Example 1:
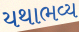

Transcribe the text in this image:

યથાભવ્ય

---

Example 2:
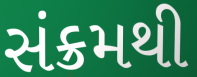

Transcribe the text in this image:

સંક્રમથી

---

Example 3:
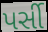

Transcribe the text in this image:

પર્સી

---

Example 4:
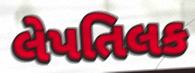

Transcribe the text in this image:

લેપતિલક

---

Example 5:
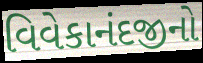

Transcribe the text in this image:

વિવેકાનંદજીનો